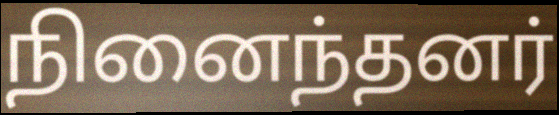
நினைந்தனர்